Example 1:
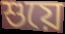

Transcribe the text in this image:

শুয়ে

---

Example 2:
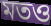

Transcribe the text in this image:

মতও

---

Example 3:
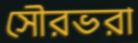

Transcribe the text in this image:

সৌরভরা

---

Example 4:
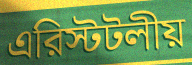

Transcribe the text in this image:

এরিস্টটলীয়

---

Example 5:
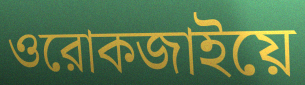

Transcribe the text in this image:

ওরোকজাইয়ে